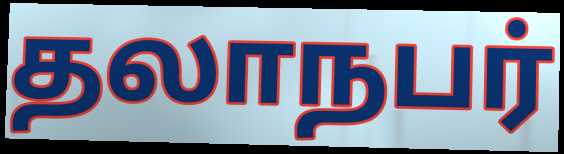
தலாநபர்